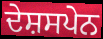
ਦੇਸ਼ਸਪੇਨ